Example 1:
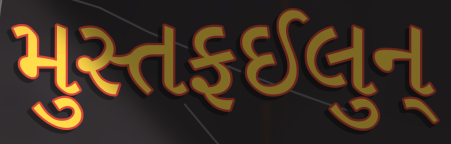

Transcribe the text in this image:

મુસ્તફઈલુન્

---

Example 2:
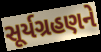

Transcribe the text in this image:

સૂર્યગ્રહણને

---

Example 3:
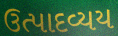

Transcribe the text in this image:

ઉત્પાદવ્યય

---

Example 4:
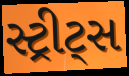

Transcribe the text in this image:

સ્ટ્રીટ્સ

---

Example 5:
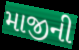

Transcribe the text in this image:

માજીની